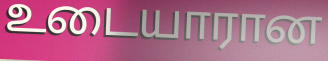
உடையாரான